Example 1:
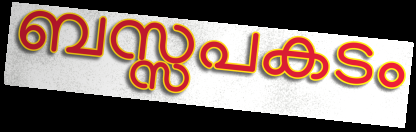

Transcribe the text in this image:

ബസ്സപകടം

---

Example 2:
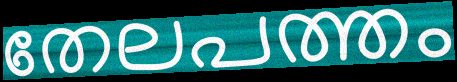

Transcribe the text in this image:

തേലപത്തം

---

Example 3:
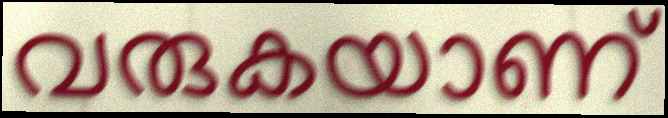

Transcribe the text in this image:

വരുകയാണ്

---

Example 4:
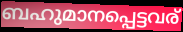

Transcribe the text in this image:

ബഹുമാനപ്പെട്ടവര്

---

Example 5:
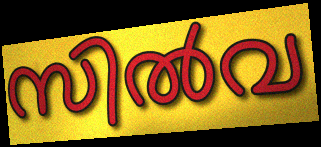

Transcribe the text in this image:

സിൽവ